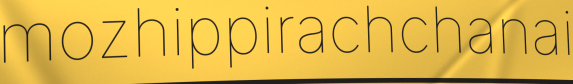
mozhippirachchanai